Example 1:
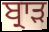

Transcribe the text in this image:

ਬ੍ਰਾੜ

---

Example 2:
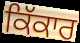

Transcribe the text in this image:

ਕਿੱਕਾਰ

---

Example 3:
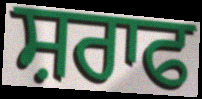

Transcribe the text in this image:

ਸ਼ਰਾਫ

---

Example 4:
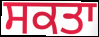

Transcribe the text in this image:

ਸਕਤਾ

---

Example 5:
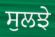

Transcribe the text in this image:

ਸੁਲਝੇ